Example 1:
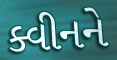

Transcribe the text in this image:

ક્વીનને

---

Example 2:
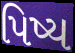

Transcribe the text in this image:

પિષ્ય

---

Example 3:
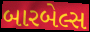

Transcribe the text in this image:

બારબેલ્સ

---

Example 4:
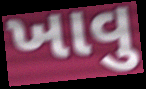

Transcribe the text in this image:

ખાવુ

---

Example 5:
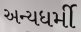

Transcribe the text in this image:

અન્યધર્મી